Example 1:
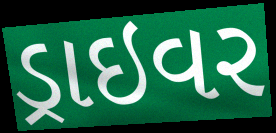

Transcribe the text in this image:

ડ્રાઇવર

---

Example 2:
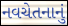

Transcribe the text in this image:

નવચેતનાનું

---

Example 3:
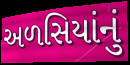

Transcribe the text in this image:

અળસિયાંનું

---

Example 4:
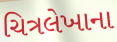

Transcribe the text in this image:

ચિત્રલેખાના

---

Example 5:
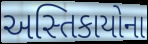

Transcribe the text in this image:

અસ્તિકાયોના